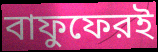
বাফুফেরই